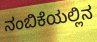
ನಂಬಿಕೆಯಲ್ಲಿನ